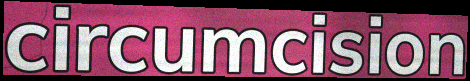
circumcision